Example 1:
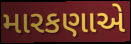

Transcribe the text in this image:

મારકણાએ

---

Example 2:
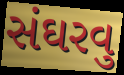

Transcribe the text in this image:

સંઘરવુ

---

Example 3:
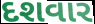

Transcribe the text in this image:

દશવાર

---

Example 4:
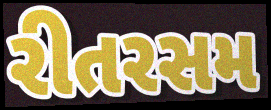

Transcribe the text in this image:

રીતરસમ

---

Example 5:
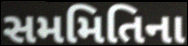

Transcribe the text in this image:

સમમિતિના